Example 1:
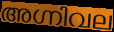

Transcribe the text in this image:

അഗ്നിവല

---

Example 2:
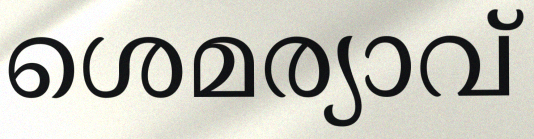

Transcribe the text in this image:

ശെമര്യാവ്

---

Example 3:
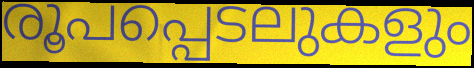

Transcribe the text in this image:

രൂപപ്പെടലുകളും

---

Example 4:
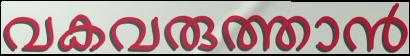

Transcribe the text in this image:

വകവരുത്താൻ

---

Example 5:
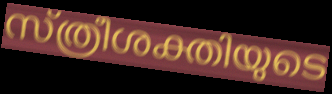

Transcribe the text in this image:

സ്‌ത്രീശക്തിയുടെ